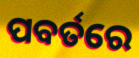
ପବର୍ତରେ